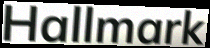
Hallmark